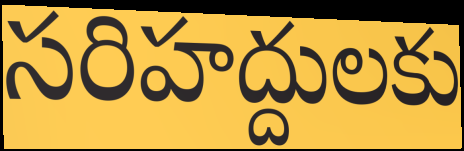
సరిహద్దులకు